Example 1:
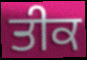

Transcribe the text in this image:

ਤੀਕ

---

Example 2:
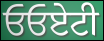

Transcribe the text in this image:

ਓਓਏਟੀ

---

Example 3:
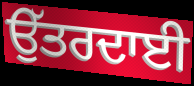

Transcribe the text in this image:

ਉੱਤਰਦਾਈ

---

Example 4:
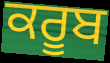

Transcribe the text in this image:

ਕਰੂਬ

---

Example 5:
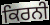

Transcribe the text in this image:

ਕਿਰਨੀ